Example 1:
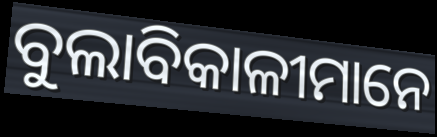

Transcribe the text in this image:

ବୁଲାବିକାଳୀମାନେ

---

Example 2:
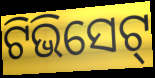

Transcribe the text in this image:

ଟିଭିସେଟ୍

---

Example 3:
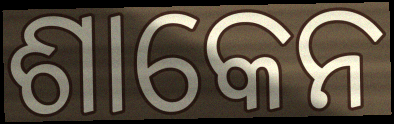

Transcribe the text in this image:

ଶାକେନ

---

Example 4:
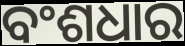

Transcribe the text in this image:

ବଂଶଧାର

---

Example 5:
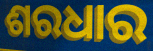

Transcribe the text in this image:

ଶରଧାର